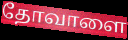
தோவாளை